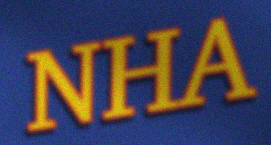
NHA